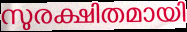
സുരക്ഷിതമായി